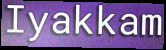
Iyakkam